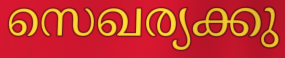
സെഖര്യക്കു